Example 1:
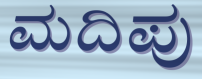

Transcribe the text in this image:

ಮದಿಪು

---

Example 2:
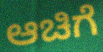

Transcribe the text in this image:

ಆಚಿಗೆ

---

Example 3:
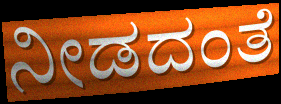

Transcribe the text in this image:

ನೀಡದಂತೆ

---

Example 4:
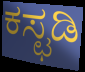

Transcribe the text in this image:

ಕಸ್ಟಡಿ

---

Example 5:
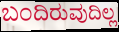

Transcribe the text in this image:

ಬಂದಿರುವುದಿಲ್ಲ